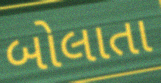
બોલાતા